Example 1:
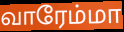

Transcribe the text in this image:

வாரேம்மா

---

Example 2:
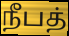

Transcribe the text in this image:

நீபத்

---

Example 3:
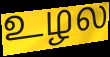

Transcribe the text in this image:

உழல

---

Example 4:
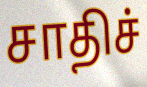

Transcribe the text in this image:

சாதிச்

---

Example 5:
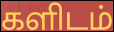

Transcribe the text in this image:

களிடம்